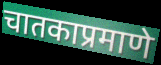
चातकाप्रमाणे